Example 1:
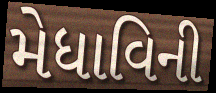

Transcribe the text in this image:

મેધાવિની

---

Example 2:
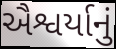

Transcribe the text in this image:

ઐશ્વર્યાનું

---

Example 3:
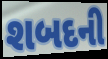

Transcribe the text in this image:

શબદની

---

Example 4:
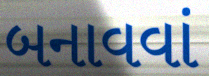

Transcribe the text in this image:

બનાવવાં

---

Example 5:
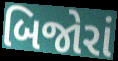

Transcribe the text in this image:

બિજોરાં